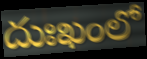
దుఃఖంలో